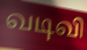
வடிவி